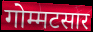
गोम्मटसार